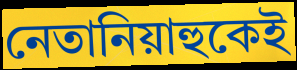
নেতানিয়াহুকেই